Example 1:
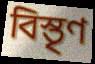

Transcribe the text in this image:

বিস্তৃণ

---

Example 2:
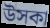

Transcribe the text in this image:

উসকা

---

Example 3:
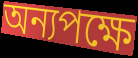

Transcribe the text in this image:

অন্যপক্ষে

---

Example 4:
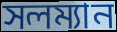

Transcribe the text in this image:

সলম্যান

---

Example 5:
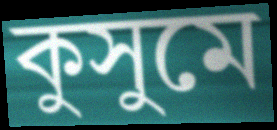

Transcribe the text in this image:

কুসুমে